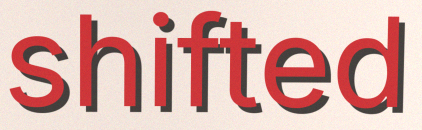
shifted